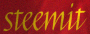
steemit